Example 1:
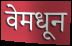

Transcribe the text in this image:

वेमधून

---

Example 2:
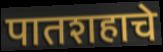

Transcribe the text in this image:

पातशहाचे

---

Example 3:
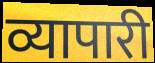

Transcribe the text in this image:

व्यापारी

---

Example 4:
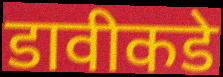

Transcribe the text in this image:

डावीकडे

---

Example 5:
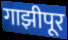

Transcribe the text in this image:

गाझीपूर